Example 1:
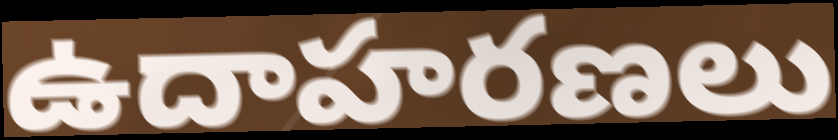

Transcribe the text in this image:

ఉదాహరణలు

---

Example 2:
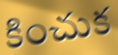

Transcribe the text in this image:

కించుక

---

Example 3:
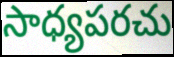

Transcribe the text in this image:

సాధ్యపరచు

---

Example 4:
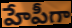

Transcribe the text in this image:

హేపీగా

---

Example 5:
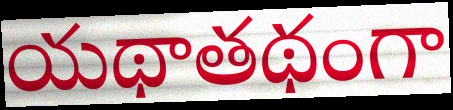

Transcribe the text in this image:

యథాతథంగా